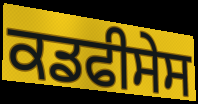
ਕਡਫੀਸੇਸ